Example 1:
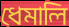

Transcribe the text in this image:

ধেমালি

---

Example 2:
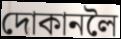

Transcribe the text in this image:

দোকানলৈ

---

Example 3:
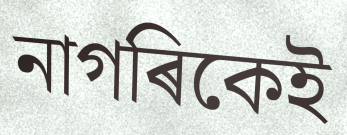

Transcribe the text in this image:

নাগৰিকেই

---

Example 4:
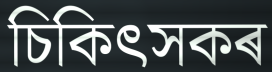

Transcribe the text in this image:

চিকিৎসকৰ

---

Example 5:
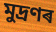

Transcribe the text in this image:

মুদ্ৰণৰ